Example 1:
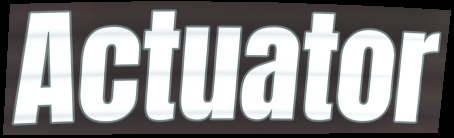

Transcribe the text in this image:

Actuator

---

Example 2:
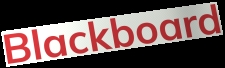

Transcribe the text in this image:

Blackboard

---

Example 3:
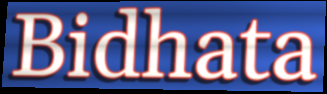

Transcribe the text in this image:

Bidhata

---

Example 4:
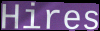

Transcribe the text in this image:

Hires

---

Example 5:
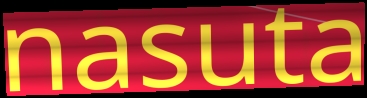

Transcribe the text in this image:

nasuta